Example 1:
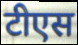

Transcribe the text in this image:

टीएस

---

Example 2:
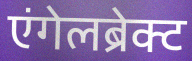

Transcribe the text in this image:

एंगेलब्रेक्ट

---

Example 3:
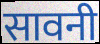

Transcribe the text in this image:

सावनी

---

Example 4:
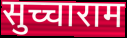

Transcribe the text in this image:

सुच्चाराम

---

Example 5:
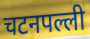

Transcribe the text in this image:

चटनपल्ली